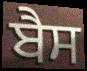
ਬੈਸ